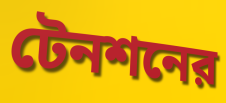
টেনশনের